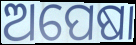
ଅପେଷା